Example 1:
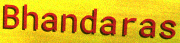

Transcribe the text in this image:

Bhandaras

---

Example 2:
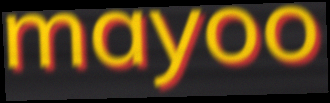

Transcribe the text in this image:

mayoo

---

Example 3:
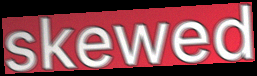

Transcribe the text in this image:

skewed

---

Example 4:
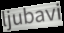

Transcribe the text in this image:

ljubavi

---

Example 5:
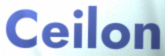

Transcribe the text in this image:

Ceilon